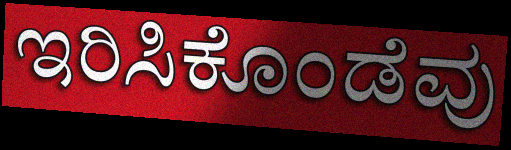
ಇರಿಸಿಕೊಂಡೆವು